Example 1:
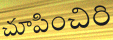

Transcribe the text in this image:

చూపించిరి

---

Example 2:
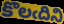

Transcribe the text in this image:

కొలఁదిని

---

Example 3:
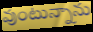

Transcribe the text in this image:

వుంటున్నాను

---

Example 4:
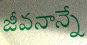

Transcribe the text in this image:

జీవనాన్నే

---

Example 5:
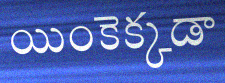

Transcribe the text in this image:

యింకెక్కడా